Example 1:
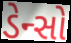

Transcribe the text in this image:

ડેન્સો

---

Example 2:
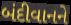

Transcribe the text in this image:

બંદીવાનને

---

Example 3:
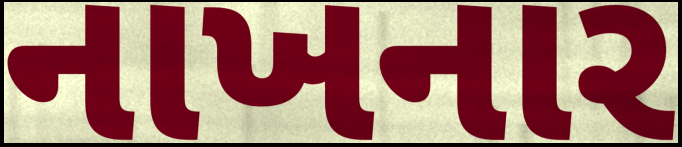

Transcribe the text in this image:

નાખનાર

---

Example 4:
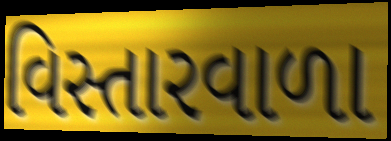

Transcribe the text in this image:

વિસ્તારવાળા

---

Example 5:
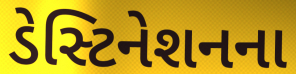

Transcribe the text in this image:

ડેસ્ટિનેશનના